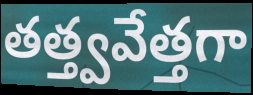
తత్త్వవేత్తగా